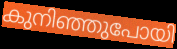
കുനിഞ്ഞുപോയി